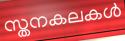
സ്തനകലകൾ